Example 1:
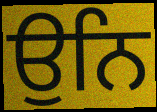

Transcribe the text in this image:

ਉਨਿ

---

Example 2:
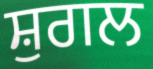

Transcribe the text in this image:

ਸ਼ੁਗਲ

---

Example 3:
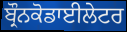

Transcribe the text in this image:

ਬ੍ਰੌਨਕੋਡਾਈਲੇਟਰ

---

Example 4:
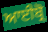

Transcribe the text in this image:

ਆਈਬ੍ਰੋ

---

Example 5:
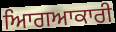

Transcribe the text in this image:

ਆਿਗਆਕਾਰੀ